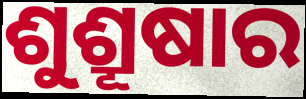
ଶୁଶ୍ରୂଷାର